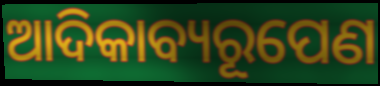
ଆଦିକାବ୍ୟରୂପେଣ